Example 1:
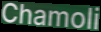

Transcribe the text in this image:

Chamoli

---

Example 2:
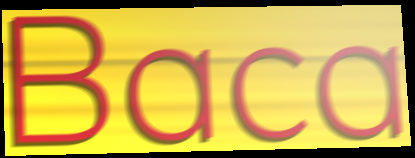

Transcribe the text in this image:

Baca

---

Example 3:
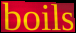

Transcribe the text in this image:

boils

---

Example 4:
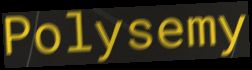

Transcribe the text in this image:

Polysemy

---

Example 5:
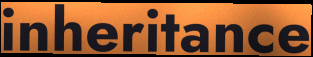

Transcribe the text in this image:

inheritance